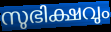
സുഭിക്ഷവും